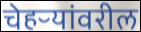
चेहऱ्यांवरील